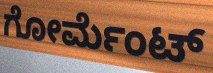
ಗೋರ್ಮೆಂಟ್